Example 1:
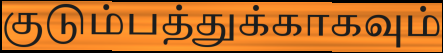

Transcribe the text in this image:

குடும்பத்துக்காகவும்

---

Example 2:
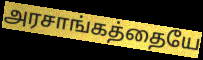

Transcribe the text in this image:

அரசாங்கத்தையே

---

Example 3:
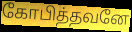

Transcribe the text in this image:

கோபித்தவனே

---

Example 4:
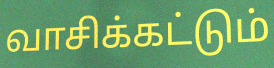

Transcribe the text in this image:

வாசிக்கட்டும்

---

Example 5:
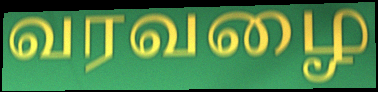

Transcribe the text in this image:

வரவழை